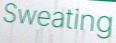
Sweating